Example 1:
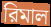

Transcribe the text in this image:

রিমাল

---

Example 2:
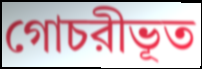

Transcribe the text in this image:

গোচরীভূত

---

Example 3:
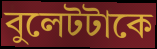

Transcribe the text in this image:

বুলেটটাকে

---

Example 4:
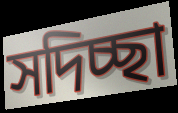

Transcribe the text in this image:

সদিচ্ছা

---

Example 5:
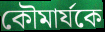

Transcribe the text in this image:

কৌমার্যকে